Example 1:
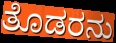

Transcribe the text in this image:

ತೊಡರನು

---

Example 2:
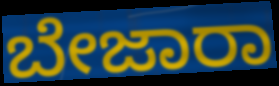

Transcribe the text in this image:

ಬೇಜಾರಾ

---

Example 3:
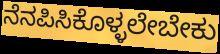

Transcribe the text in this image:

ನೆನಪಿಸಿಕೊಳ್ಳಲೇಬೇಕು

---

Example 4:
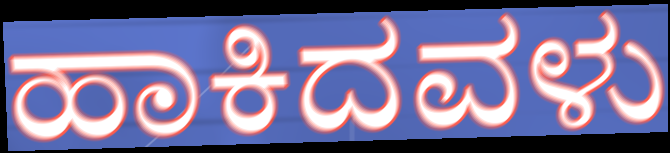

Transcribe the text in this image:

ಹಾಕಿದವಳು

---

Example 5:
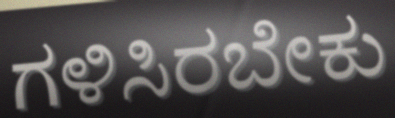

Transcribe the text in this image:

ಗಳಿಸಿರಬೇಕು